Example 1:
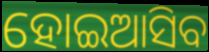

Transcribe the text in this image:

ହୋଇଆସିବ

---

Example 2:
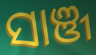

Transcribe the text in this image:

ସାଞ୍ଜ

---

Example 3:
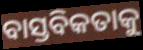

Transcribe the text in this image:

ବାସ୍ତବିକତାକୁ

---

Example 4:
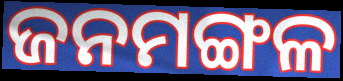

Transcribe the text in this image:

ଜନମଙ୍ଗଳ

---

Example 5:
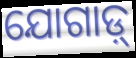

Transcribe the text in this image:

ଯୋଗାଡ଼୍